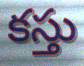
కస్తు